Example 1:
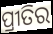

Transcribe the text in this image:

ପ୍ରୀତିର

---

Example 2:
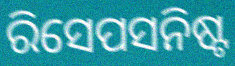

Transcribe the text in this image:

ରିସେପସନିଷ୍ଟ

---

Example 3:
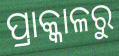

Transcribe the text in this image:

ପ୍ରାକ୍କାଳରୁ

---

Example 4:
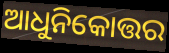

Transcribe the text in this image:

ଆଧୁନିକୋତ୍ତର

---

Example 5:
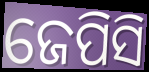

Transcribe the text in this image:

ଜେପିସି